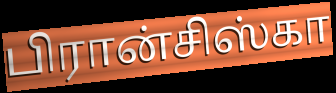
பிரான்சிஸ்கா